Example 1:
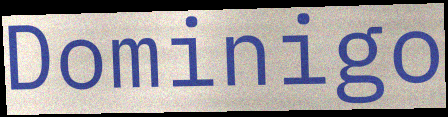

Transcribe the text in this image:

Dominigo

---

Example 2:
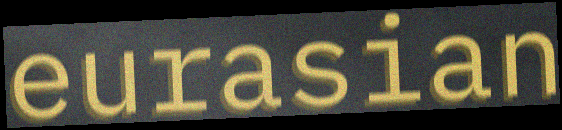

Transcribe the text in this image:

eurasian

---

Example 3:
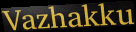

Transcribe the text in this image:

Vazhakku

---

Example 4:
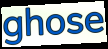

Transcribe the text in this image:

ghose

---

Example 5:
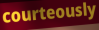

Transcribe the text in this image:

courteously